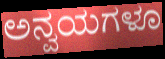
ಅನ್ವಯಗಳೂ